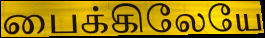
பைக்கிலேயே